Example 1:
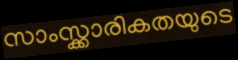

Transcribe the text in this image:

സാംസ്ക്കാരികതയുടെ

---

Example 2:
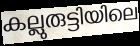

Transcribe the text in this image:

കല്ലുരുട്ടിയിലെ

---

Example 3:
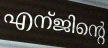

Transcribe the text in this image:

എന്ജിന്റെ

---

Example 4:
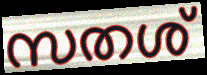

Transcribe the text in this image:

സതശ്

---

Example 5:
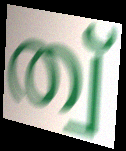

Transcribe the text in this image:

ത്വ്